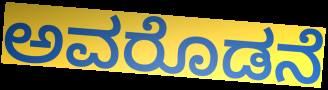
ಅವರೊಡನೆ